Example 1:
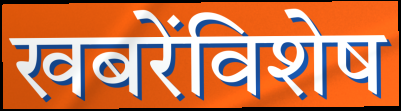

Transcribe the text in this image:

खबरेंविशेष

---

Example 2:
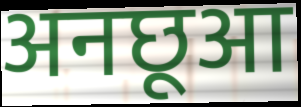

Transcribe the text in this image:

अनछूआ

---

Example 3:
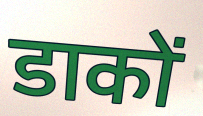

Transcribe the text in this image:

डाकों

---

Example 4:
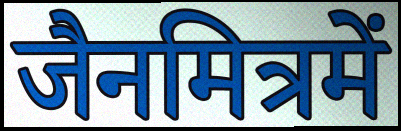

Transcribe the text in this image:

जैनमित्रमें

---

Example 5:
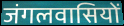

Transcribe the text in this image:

जंगलवासियों